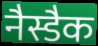
नैस्डैक